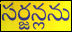
సర్జన్లను